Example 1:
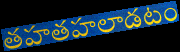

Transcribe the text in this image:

తహతహలాడటం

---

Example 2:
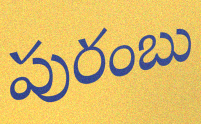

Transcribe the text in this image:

పురంబు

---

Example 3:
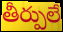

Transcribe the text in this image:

తీర్పులే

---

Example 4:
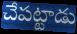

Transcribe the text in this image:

చేపట్టాడు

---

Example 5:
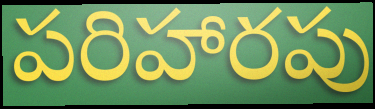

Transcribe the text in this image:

పరిహారపు